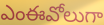
ఎంఈవోలుగా